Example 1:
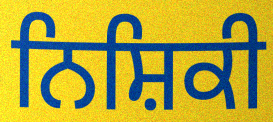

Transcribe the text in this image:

ਨਿਸ਼ਿਕੀ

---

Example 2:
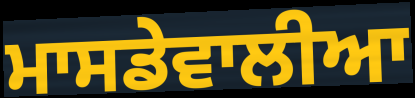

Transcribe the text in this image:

ਮਾਸਡੇਵਾਲੀਆ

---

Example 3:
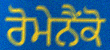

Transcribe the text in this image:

ਰੋਮੇਨੈਂਕੋ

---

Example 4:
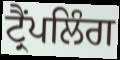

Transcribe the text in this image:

ਟ੍ਰੈਂਪਲਿੰਗ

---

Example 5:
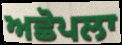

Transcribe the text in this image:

ਅਛੋਪਲਾ